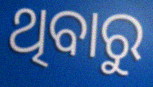
ଥିବାରୁ